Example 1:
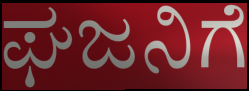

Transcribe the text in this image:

ಘಜನಿಗೆ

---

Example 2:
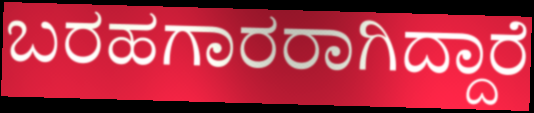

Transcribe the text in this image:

ಬರಹಗಾರರಾಗಿದ್ದಾರೆ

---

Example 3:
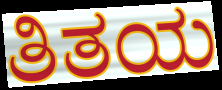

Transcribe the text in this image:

ತಿತಯ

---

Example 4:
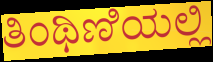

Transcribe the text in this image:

ತಿಂಥಿಣಿಯಲ್ಲಿ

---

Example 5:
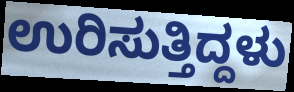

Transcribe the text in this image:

ಉರಿಸುತ್ತಿದ್ದಳು